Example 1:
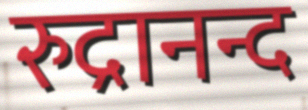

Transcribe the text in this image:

रुद्रानन्द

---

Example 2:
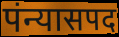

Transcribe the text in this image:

पंन्यासपद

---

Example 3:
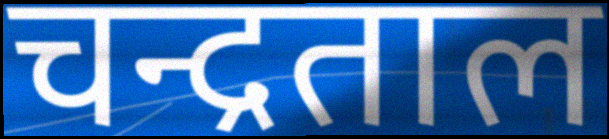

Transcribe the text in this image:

चन्द्रताल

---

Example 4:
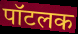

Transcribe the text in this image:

पॉटलक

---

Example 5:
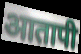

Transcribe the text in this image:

आतापी